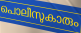
പൊലീസുകാരും